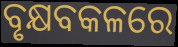
ବୃକ୍ଷବକଳରେ